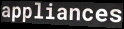
appliances